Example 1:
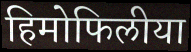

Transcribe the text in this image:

हिमोफिलीया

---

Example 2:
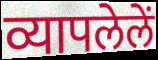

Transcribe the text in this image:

व्यापलेलें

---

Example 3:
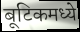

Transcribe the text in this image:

बूटिकमध्ये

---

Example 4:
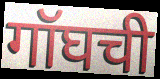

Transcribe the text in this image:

गॉघची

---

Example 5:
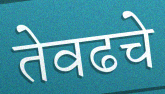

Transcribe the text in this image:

तेवढचे